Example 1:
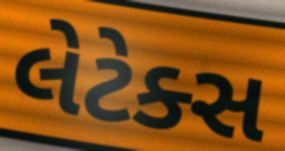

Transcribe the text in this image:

લેટેક્સ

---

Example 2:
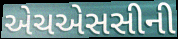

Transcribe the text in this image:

એચએસસીની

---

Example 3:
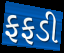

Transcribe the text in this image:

ફફડી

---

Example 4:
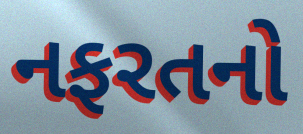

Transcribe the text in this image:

નફરતનો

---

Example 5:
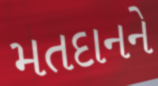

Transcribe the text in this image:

મતદાનને